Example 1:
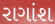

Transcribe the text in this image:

રાગાંશ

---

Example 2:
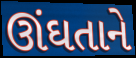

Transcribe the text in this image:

ઊંઘતાને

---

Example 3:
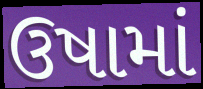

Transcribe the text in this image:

ઉષામાં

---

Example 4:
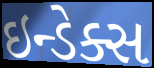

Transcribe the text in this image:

ઇન્ડેક્સ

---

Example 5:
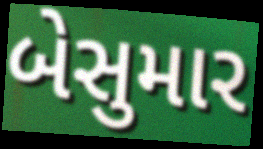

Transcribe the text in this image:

બેસુમાર